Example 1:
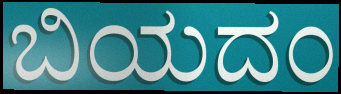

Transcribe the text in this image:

ಬಿಯದಂ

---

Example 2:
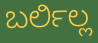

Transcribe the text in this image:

ಬರ್ಲಿಲ್ಲ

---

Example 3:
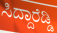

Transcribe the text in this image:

ಸಿದ್ದಾರೆಡ್ಡಿ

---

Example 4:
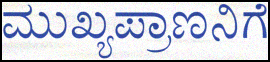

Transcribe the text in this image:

ಮುಖ್ಯಪ್ರಾಣನಿಗೆ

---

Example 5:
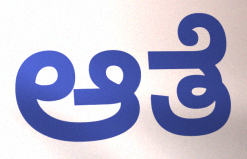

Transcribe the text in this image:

ಆತೆ